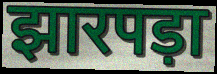
झारपड़ा